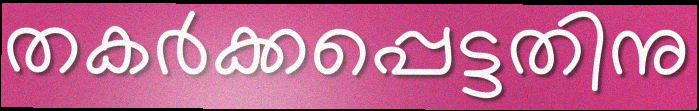
തകർക്കപ്പെട്ടതിനു